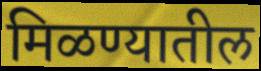
मिळण्यातील